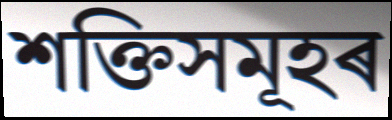
শক্তিসমূহৰ